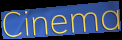
Cinema